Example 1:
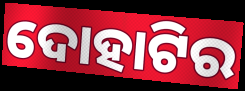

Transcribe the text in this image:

ଦୋହାଟିର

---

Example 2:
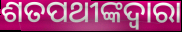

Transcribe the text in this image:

ଶତପଥୀଙ୍କଦ୍ୱାରା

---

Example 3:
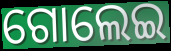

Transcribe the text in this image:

ଗୋଲେଇ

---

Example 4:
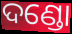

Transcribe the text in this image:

ଦଣ୍ଡୋ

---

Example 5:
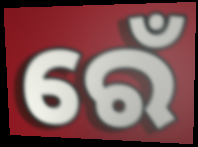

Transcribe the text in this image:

ରେଁ